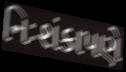
નિઃશંકાપણે